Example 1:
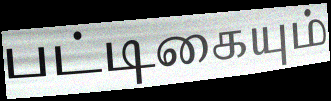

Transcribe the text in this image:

பட்டிகையும்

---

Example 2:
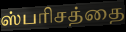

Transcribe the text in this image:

ஸ்பரிசத்தை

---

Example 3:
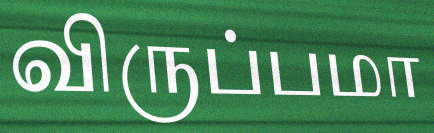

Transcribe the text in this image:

விருப்பமா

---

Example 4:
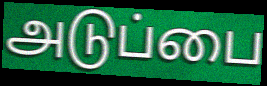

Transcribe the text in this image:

அடுப்பை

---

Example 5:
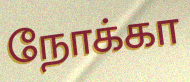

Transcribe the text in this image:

நோக்கா